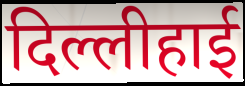
दिल्लीहाई